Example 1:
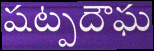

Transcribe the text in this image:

షట్పదౌఘ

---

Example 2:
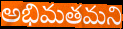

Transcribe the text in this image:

అభిమతమని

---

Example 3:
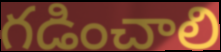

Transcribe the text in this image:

గడించాలి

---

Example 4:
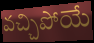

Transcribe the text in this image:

వచ్చిపోయే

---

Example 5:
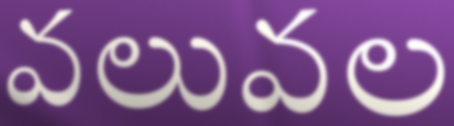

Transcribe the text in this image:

వలువల